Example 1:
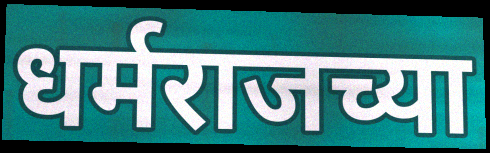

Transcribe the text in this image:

धर्मराजच्या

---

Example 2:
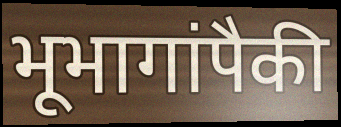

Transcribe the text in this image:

भूभागांपैकी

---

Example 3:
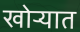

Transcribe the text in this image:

खोऱ्यात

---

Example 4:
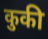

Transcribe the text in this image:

कुकी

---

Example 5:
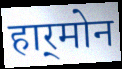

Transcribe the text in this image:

हार्मोन